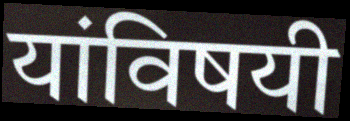
यांविषयी